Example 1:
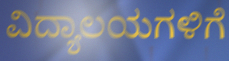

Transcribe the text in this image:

ವಿದ್ಯಾಲಯಗಳಿಗೆ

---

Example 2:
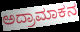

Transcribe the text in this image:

ಅದ್ರಾಮಾಕನ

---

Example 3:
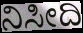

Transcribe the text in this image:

ನಿಸೀದಿ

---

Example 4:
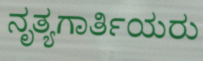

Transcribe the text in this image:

ನೃತ್ಯಗಾರ್ತಿಯರು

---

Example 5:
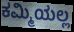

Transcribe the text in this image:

ಕಮ್ಮಿಯಲ್ಲ